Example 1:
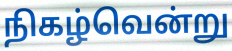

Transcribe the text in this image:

நிகழ்வென்று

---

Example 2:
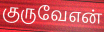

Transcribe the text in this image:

குருவேஎன்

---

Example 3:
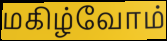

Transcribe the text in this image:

மகிழ்வோம்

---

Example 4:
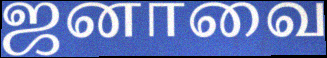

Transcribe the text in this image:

ஜனாவை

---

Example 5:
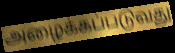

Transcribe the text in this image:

அழைக்கப்படுவது